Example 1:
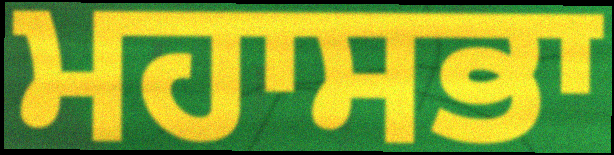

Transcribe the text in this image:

ਮਹਾਸਭਾ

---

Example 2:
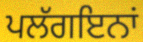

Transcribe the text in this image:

ਪਲੱਗਇਨਾਂ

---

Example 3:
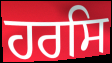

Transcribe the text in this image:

ਹਰਸਿ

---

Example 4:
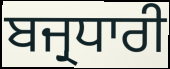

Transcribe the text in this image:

ਬਜ੍ਰਧਾਰੀ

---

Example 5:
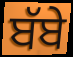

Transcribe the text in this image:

ਬੱਬੇ